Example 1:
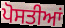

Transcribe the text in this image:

ਪੋਸਤੀਆਂ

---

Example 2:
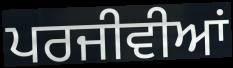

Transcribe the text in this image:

ਪਰਜੀਵੀਆਂ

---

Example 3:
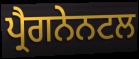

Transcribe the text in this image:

ਪ੍ਰੈਗਨੇਨਟਲ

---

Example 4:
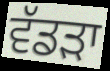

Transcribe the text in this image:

ਵੱਡਡ਼ਾ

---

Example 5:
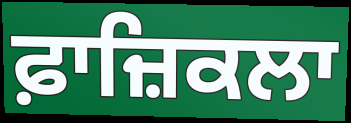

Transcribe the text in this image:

ਫ਼ਾਜ਼ਿਕਲਾ